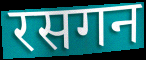
रसगन